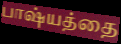
பாஷ்யத்தை